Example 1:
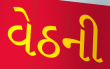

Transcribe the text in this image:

વેઠની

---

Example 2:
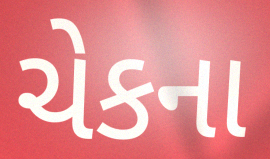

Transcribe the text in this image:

ચેકના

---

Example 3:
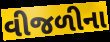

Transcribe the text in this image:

વીજળીના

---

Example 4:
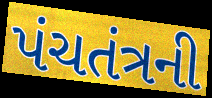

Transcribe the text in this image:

પંચતંત્રની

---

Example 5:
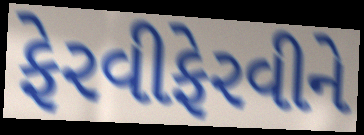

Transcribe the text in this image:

ફેરવીફેરવીને